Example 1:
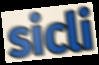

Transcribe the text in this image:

sicli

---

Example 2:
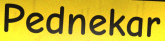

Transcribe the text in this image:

Pednekar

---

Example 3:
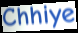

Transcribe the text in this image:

Chhiye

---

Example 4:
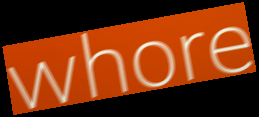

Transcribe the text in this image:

whore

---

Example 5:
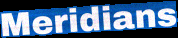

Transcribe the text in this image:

Meridians